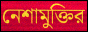
নেশামুক্তির